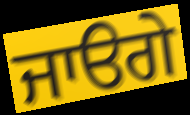
ਜਾੳਗੇ